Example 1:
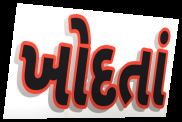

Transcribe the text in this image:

ખોદતાં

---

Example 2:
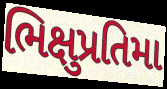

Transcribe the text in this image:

ભિક્ષુપ્રતિમા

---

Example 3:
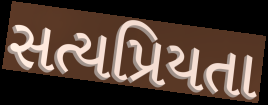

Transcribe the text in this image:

સત્યપ્રિયતા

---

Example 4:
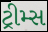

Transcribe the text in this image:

ટ્રીમ્સ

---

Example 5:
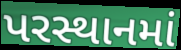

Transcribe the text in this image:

પરસ્થાનમાં